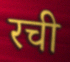
रची